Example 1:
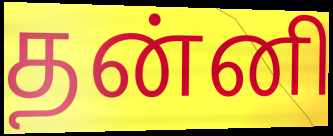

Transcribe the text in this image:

தன்னி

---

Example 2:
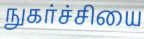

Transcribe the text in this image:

நுகர்ச்சியை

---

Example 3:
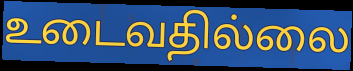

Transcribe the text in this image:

உடைவதில்லை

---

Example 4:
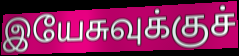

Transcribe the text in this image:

இயேசுவுக்குச்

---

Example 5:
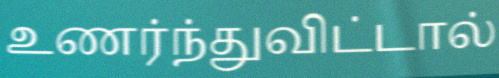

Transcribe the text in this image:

உணர்ந்துவிட்டால்